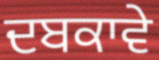
ਦਬਕਾਵੇ